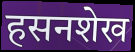
हसनशेख